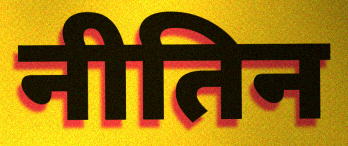
नीतिन